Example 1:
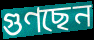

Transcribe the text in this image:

গুণছেন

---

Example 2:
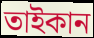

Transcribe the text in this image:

তাইকান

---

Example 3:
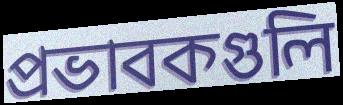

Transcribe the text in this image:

প্রভাবকগুলি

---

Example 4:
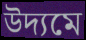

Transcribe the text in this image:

উদ্যমে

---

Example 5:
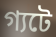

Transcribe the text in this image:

গ্যটে